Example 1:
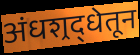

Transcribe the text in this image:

अंधश्रद्धेतून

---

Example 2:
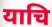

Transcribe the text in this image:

याचि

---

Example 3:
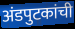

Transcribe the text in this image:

अंडपुटकांची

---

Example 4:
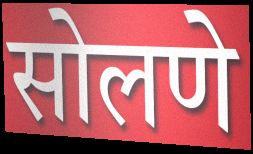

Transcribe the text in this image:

सोलणे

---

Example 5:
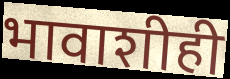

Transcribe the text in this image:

भावाशीही